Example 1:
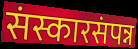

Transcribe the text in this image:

संस्कारसंपन्न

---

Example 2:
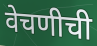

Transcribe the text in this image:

वेचणीची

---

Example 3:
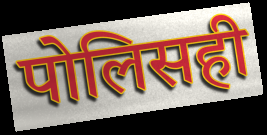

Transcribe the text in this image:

पोलिसही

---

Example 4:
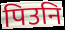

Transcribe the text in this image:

पिउनि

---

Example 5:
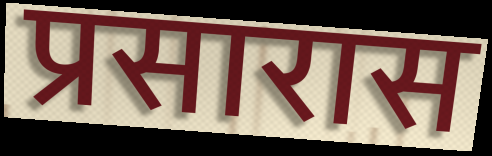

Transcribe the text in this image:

प्रसारास